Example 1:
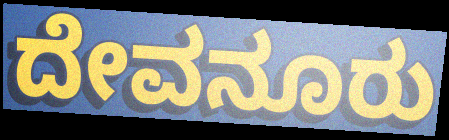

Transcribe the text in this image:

ದೇವನೂರು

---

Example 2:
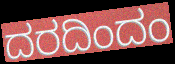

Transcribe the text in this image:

ದರದಿಂದಂ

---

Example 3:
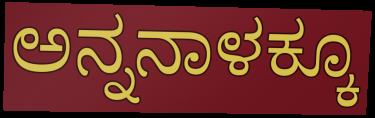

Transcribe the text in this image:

ಅನ್ನನಾಳಕ್ಕೂ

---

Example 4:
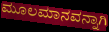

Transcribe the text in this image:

ಮೂಲಮಾನವನ್ನಾಗಿ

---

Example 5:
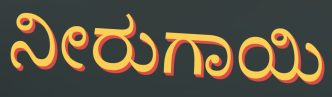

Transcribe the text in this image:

ನೀರುಗಾಯಿ